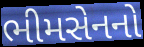
ભીમસેનનો